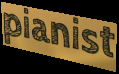
pianist